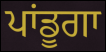
ਪਾਂਡੂਗਾ